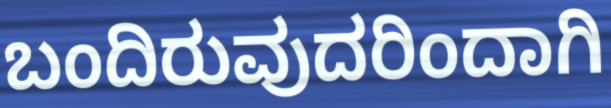
ಬಂದಿರುವುದರಿಂದಾಗಿ